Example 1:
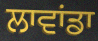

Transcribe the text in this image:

ਲਾਵਾਂਡਾ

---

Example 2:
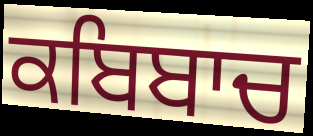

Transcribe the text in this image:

ਕਬਿਬਾਚ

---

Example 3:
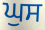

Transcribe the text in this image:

ਘੁਸ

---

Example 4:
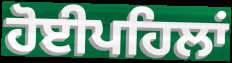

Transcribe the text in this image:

ਹੋਈਪਹਿਲਾਂ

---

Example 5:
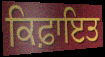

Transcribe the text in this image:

ਕਿਫ਼ਾਇਤ